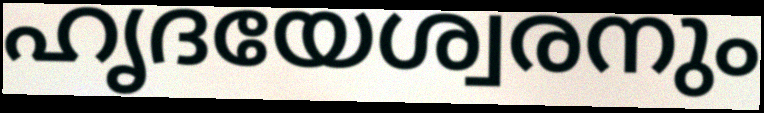
ഹൃദയേശ്വരനും